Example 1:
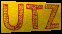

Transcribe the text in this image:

UTZ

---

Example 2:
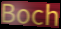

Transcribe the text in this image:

Boch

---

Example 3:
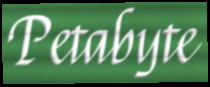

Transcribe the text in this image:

Petabyte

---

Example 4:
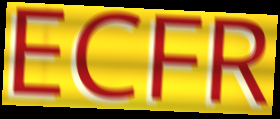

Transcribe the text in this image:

ECFR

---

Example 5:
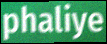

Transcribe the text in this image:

phaliye